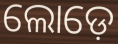
ଲୋଡ଼େ